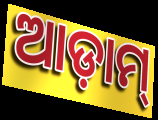
ଆଡ଼ାମ୍